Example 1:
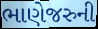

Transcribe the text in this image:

ભાણેજરુની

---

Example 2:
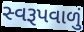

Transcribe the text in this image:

સ્વરૂપવાળું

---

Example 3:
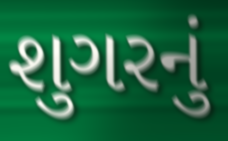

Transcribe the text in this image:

શુગરનું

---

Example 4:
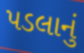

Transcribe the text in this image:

પડલાનું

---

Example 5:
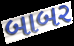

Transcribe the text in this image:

બાબર